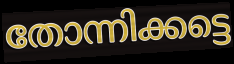
തോന്നിക്കട്ടെ